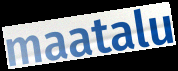
maatalu